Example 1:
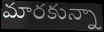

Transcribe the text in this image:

మారకున్నా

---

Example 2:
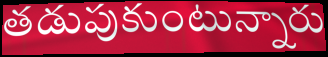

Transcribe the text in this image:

తడుపుకుంటున్నారు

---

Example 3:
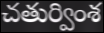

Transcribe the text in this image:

చతుర్వింశ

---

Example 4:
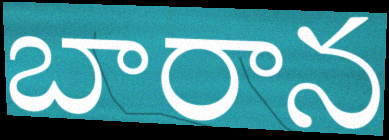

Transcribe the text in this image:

బారాన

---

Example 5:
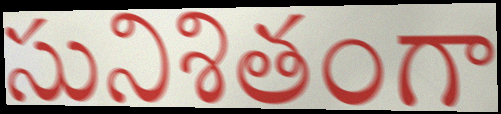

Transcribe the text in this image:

సునిశితంగా